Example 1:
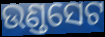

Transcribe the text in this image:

ଉଣ୍ଡସେଟ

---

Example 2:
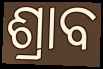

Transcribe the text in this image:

ଶ୍ରାବ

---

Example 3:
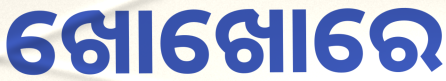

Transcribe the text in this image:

ଖୋଖୋରେ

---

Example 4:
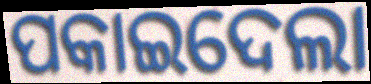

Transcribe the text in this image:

ପକାଇଦେଲା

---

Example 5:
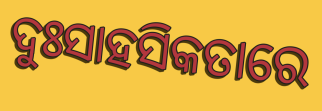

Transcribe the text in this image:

ଦୁଃସାହସିକତାରେ